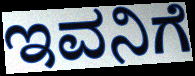
ಇವನಿಗೆ